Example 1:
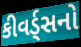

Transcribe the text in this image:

કીવર્ડ્સનો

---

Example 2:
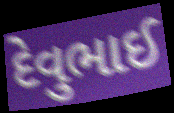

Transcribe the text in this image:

દેવુભાઈ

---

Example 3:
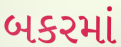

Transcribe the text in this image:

બકરમાં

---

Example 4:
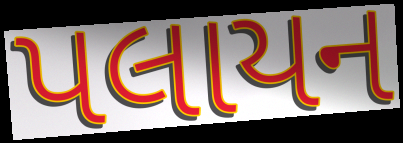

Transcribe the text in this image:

પલાયન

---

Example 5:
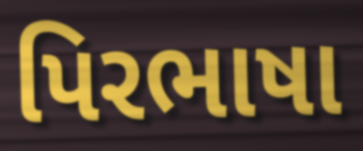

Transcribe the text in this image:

પિરભાષા